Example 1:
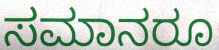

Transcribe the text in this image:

ಸಮಾನರೂ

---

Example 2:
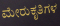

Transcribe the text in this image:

ಮೇರುಕೃತಿಗಳ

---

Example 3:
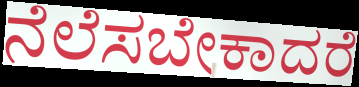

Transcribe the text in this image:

ನೆಲೆಸಬೇಕಾದರೆ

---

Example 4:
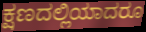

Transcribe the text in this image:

ಕ್ಷಣದಲ್ಲಿಯಾದರೂ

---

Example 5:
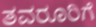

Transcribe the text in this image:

ತವರೂರಿಗೆ